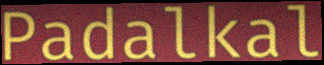
Padalkal